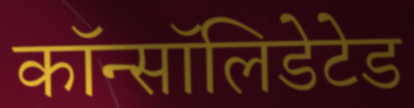
कॉन्सॉलिडेटेड